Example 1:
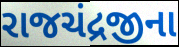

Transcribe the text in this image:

રાજચંદ્રજીના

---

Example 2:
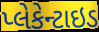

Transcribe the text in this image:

પ્લેકેન્ટાઇડ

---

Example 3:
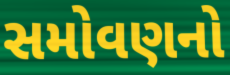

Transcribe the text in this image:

સમોવણનો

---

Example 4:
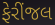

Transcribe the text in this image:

ફેરીંજલ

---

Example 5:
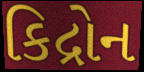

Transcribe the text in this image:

કિદ્રોન